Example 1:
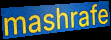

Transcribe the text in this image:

mashrafe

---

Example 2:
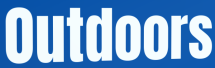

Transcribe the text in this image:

Outdoors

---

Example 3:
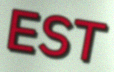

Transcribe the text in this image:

EST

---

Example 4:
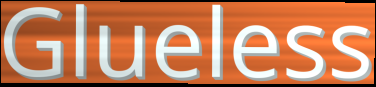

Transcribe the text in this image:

Glueless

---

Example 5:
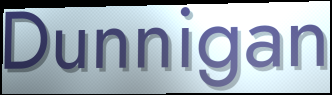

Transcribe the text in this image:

Dunnigan